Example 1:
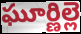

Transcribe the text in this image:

ఘూర్ణిల్లె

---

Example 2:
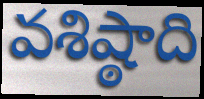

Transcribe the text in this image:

వశిష్ఠాది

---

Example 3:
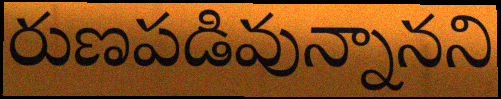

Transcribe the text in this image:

రుణపడివున్నానని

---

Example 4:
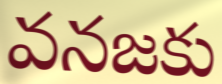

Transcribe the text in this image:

వనజకు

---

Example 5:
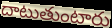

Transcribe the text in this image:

దాటుతుంటారు